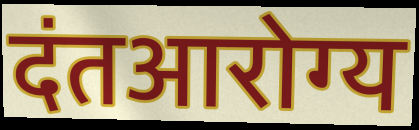
दंतआरोग्य